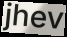
jhev